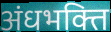
अंधभक्ति